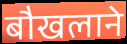
बौखलाने